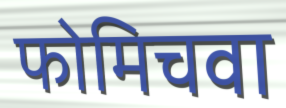
फोमिचवा